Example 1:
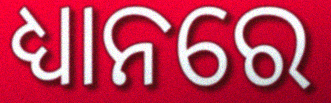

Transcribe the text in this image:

ଧ୍ୟାନରେ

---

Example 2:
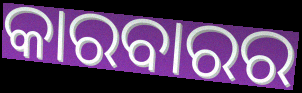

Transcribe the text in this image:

କାରବାରର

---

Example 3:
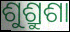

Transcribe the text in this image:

ଶୁଶ୍ରୁଶା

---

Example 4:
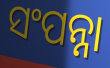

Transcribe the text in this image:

ସଂପନ୍ନା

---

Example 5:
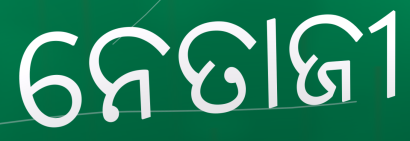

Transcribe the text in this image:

ନେତାଜୀ